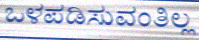
ಒಳಪಡಿಸುವಂತಿಲ್ಲ